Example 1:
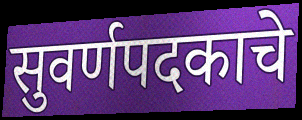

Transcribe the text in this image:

सुवर्णपदकाचे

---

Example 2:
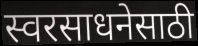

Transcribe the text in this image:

स्वरसाधनेसाठी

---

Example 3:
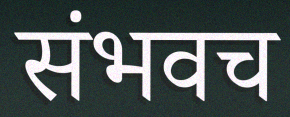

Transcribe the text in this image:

संभवच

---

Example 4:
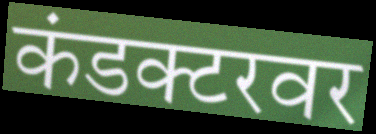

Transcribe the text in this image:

कंडक्टरवर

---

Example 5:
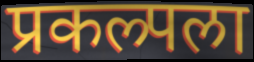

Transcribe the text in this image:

प्रकल्पला